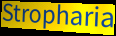
Stropharia